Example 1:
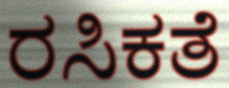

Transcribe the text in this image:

ರಸಿಕತೆ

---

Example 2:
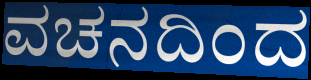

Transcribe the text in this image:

ವಚನದಿಂದ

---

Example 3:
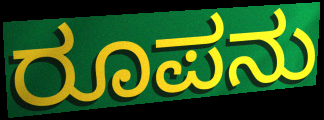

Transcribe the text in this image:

ರೂಪನು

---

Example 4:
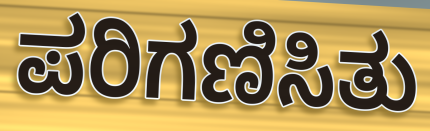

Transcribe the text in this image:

ಪರಿಗಣಿಸಿತು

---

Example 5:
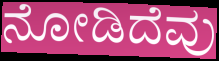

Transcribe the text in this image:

ನೋಡಿದೆವು